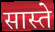
सास्ते